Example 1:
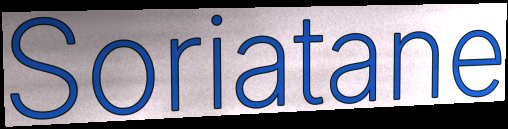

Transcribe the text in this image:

Soriatane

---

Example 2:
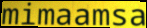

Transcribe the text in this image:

mimaamsa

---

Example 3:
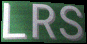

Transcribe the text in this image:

LRS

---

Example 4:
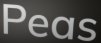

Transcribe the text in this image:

Peas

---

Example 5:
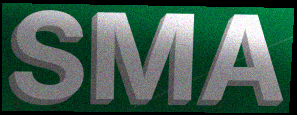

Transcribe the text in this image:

SMA